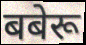
बबेरू